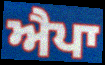
ਐਪਾ